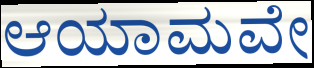
ಆಯಾಮವೇ